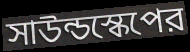
সাউন্ডস্কেপের